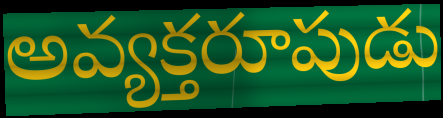
అవ్యక్తరూపుడు